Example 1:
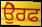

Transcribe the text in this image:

ਉੇਰਫ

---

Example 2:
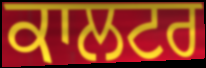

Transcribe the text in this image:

ਕਾਲਟਰ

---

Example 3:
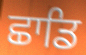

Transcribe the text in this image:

ਛਾਡਿ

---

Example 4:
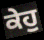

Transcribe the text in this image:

ਕੇਹੁ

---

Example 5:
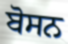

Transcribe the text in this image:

ਬੋਸਨ